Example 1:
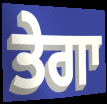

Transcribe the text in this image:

ਤੇਗਾ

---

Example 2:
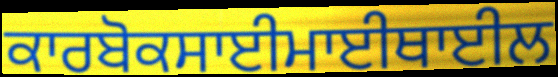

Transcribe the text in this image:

ਕਾਰਬੋਕਸਾਈਮਾਈਥਾਈਲ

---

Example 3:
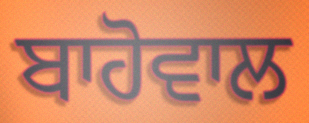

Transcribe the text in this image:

ਬਾਹੋਵਾਲ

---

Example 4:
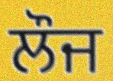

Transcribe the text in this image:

ਲੌਜ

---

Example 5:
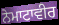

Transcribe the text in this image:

ਨੇਮਾਟਾਵੀਰ